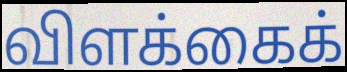
விளக்கைக்